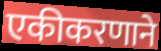
एकीकरणाने